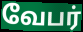
வேபர்